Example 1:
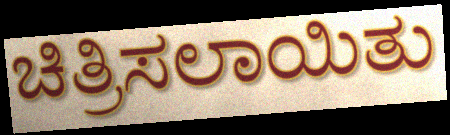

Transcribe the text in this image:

ಚಿತ್ರಿಸಲಾಯಿತು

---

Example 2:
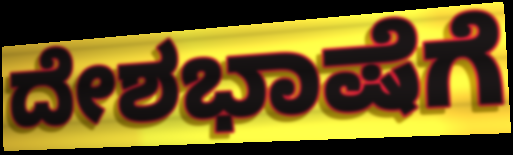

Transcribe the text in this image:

ದೇಶಭಾಷೆಗೆ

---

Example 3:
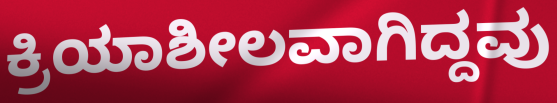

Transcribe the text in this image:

ಕ್ರಿಯಾಶೀಲವಾಗಿದ್ದವು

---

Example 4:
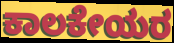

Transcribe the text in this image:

ಕಾಲಕೇಯರ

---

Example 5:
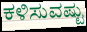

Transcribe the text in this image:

ಕಳಿಸುವಷ್ಟು